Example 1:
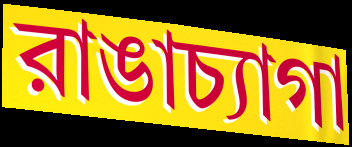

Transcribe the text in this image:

রাঙাচ্যাগা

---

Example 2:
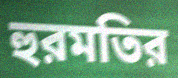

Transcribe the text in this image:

হুরমতির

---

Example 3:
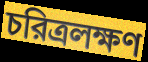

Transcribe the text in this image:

চরিত্রলক্ষণ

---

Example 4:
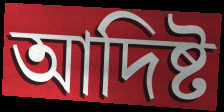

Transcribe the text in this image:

আদিষ্ট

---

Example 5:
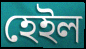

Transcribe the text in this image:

হেইল